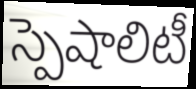
స్పెషాలిటీ